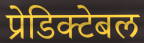
प्रेडिक्टेबल